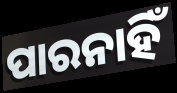
ପାରନାହିଁ